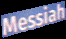
Messiah